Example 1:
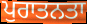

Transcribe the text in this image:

ਪੁਰਾਤਨਤਾ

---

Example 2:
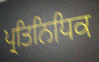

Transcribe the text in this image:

ਪ੍ਰਤਿਨਿਧਿਕ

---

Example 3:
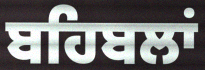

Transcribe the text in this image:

ਬਹਿਬਲਾਂ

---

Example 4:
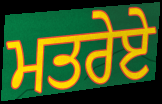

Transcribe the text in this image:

ਮਤਰੇਏ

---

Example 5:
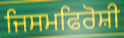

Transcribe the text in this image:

ਜਿਸਮਫਿਰੋਸ਼ੀ